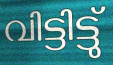
വിട്ടിട്ടു്